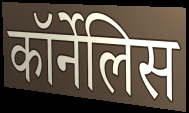
कॉर्नेलिस